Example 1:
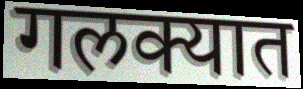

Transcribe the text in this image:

गलक्यात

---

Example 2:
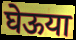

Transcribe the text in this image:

घेऊया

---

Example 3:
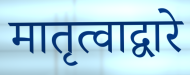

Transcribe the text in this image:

मातृत्वाद्वारे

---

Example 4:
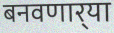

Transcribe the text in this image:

बनवणार्‍या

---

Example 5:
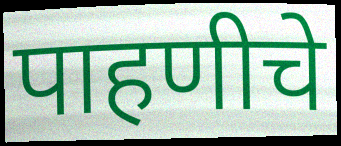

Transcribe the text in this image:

पाहणीचे